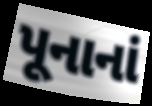
પૂનાનાં